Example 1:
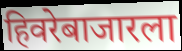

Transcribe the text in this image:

हिवरेबाजारला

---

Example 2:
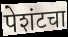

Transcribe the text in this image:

पेशंटचा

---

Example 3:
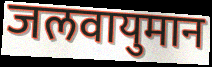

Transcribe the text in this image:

जलवायुमान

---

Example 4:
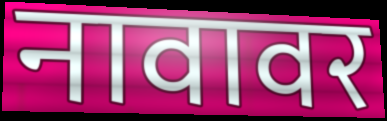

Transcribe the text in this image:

नावावर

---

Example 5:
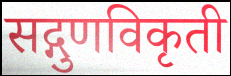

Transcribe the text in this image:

सद्गुणविकृती